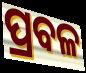
ପ୍ରବଳ